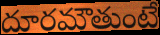
దూరమౌతుంటే